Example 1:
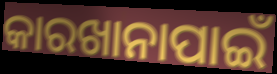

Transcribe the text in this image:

କାରଖାନାପାଇଁ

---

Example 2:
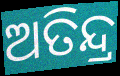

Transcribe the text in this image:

ଅତିନ୍ଦ୍ର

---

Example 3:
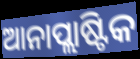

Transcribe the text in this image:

ଆନାପ୍ଲାଷ୍ଟିକ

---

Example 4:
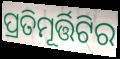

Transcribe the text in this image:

ପ୍ରତିମୂର୍ତ୍ତିଟିର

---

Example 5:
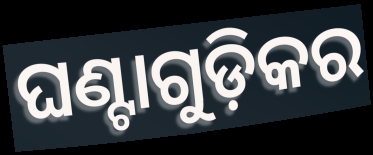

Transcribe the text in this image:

ଘଣ୍ଟାଗୁଡ଼ିକର